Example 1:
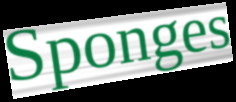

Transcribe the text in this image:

Sponges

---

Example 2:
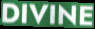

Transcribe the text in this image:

DIVINE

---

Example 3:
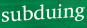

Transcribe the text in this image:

subduing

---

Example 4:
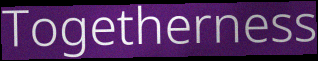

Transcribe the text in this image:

Togetherness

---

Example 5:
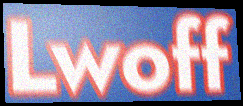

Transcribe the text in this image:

Lwoff